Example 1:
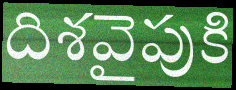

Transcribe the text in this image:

దిశవైపుకి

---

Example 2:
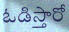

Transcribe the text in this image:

ఓడిస్తారో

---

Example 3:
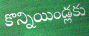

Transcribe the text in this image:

కొన్నియిండ్లకు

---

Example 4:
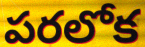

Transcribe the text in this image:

పరలోక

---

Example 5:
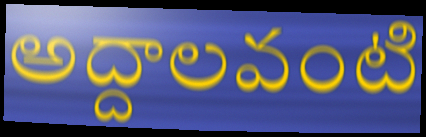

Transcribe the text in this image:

అద్దాలవంటి